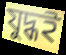
যুদ্ধই